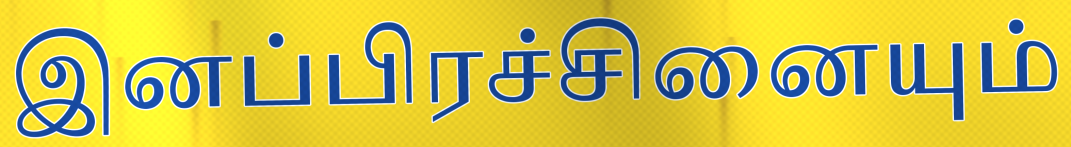
இனப்பிரச்சினையும்